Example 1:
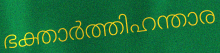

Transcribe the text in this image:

ഭക്താർത്തിഹന്താര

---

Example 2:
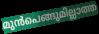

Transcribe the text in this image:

മുൻപെങ്ങുമില്ലാത്ത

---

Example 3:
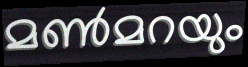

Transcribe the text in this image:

മൺമറയും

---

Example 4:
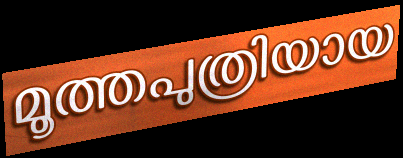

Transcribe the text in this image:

മൂത്തപുത്രിയായ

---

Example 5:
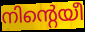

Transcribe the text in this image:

നിന്റെയീ